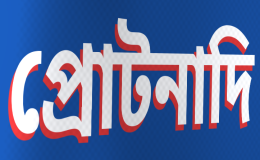
প্রোটনাদি